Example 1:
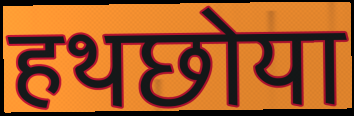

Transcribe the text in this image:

हथछोया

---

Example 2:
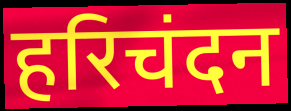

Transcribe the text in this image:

हरिचंदन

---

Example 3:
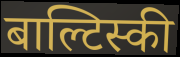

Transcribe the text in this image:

बाल्टिस्की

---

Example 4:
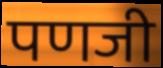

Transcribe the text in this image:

पणजी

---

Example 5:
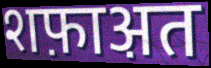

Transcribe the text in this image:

शफ़ाअ़त